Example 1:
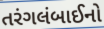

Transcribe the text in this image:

તરંગલંબાઈનો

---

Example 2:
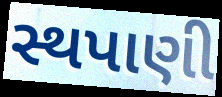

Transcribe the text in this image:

સ્થપાણી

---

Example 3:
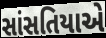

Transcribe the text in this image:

સાંસતિયાએ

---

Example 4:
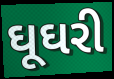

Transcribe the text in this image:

ઘૂઘરી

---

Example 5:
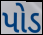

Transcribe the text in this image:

પોડ